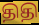
திதி